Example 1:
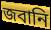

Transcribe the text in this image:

জবানি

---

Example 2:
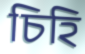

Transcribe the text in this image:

চিহি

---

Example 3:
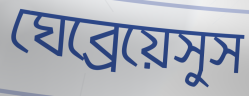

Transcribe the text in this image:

ঘেব্রেয়েসুস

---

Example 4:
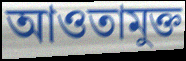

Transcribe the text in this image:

আওতামুক্ত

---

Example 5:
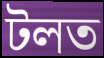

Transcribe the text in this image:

টলত